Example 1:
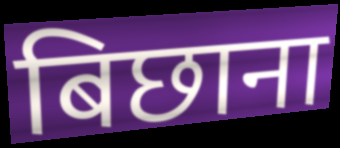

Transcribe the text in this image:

बिछाना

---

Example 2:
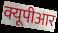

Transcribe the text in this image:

क्यूपीआर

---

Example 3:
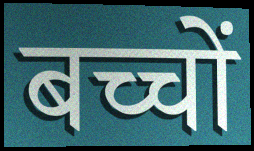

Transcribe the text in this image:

बच्चों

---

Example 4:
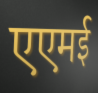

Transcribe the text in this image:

एएमई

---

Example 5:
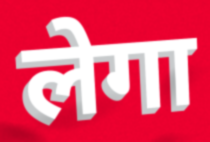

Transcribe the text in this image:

लेगा